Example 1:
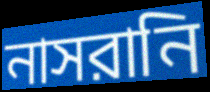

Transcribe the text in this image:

নাসরানি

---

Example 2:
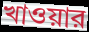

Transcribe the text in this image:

খাওয়ার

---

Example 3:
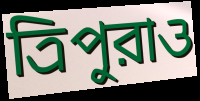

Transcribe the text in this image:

ত্রিপুরাও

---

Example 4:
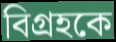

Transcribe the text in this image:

বিগ্রহকে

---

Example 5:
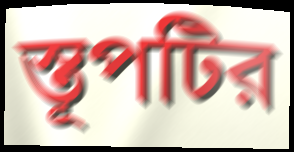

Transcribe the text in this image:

স্তূপটির